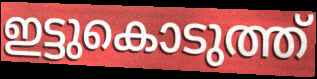
ഇട്ടുകൊടുത്ത്